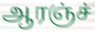
ஆரஞ்ச்